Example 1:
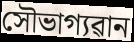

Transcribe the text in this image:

সৌভাগ্যৱান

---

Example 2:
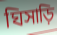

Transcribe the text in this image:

ঘিসাড়ি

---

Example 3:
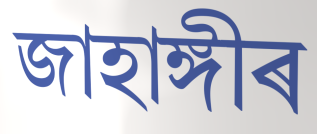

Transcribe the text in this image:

জাহাঙ্গীৰ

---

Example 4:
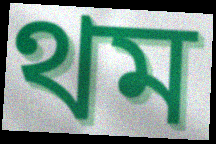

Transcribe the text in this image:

থম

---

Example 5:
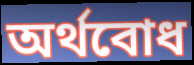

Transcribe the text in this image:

অৰ্থবোধ